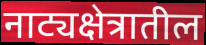
नाट्यक्षेत्रातील